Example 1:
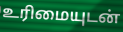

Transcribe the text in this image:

உரிமையுடன்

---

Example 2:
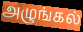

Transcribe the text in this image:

அழுங்கல்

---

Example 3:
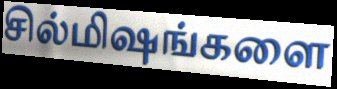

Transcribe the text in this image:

சில்மிஷங்களை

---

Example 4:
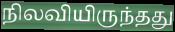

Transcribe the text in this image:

நிலவியிருந்தது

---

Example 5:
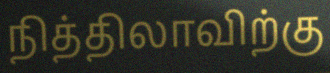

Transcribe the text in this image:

நித்திலாவிற்கு